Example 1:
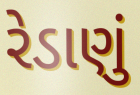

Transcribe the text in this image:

રેડાણું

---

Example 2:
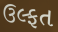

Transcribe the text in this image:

ઉલ્ફત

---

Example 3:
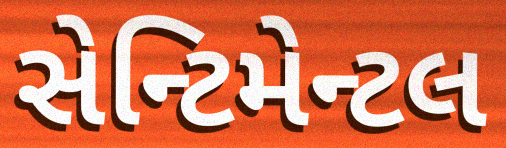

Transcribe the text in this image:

સેન્ટિમેન્ટલ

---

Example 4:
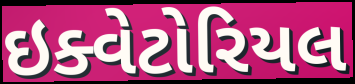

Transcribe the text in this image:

ઇક્વેટોરિયલ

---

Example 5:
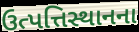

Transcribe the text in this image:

ઉત્પત્તિસ્થાનના